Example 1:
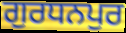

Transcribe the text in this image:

ਗੁਰਧਨਪੁਰ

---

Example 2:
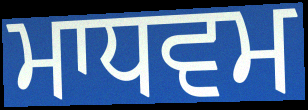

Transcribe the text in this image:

ਮਾਧਵਮ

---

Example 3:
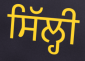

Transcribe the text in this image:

ਸਿੱਲ੍ਹੀ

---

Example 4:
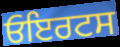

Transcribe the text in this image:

ਓਇਰਟਸ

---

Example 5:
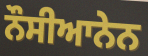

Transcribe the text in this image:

ਨੌਸੀਆਨੇਨ